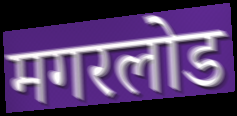
मगरलोड